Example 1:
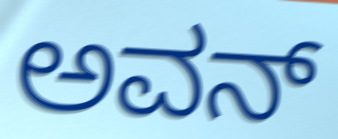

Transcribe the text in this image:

ಅವನ್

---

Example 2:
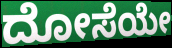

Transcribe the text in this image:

ದೋಸೆಯೇ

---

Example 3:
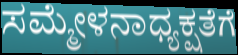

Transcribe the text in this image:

ಸಮ್ಮೇಳನಾಧ್ಯಕ್ಷತೆಗೆ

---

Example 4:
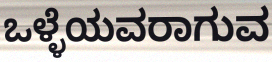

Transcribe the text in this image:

ಒಳ್ಳೆಯವರಾಗುವ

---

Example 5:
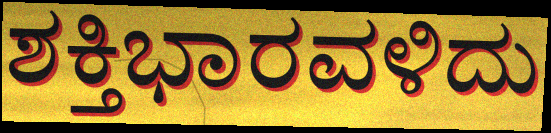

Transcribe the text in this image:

ಶಕ್ತಿಭಾರವಳಿದು